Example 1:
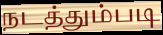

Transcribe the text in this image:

நடத்தும்படி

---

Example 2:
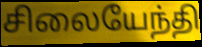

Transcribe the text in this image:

சிலையேந்தி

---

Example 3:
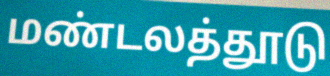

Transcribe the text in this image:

மண்டலத்தூடு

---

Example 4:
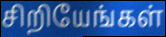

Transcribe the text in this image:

சிறியேங்கள்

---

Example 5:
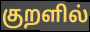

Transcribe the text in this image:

குறளில்